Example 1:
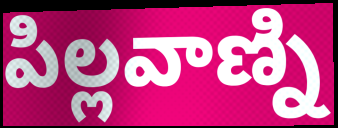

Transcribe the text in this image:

పిల్లవాణ్ని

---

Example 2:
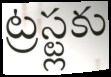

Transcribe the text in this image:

ట్రస్ట్లకు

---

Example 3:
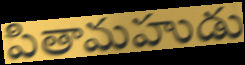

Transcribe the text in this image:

పితామహుడు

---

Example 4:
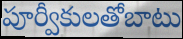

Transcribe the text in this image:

పూర్వీకులతోబాటు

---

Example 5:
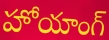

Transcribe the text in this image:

హోయాంగ్